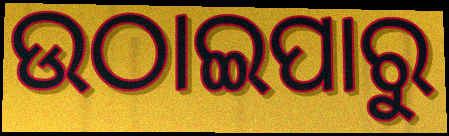
ଉଠାଇପାରୁ